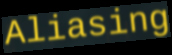
Aliasing